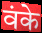
वंके